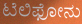
ಟೆಲಿಫೋನು